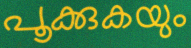
പൂക്കുകയും